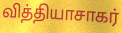
வித்தியாசாகர்